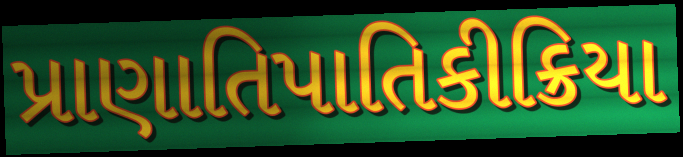
પ્રાણાતિપાતિકીક્રિયા